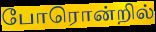
போரொன்றில்